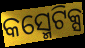
କସ୍ମେଟିକ୍ସ